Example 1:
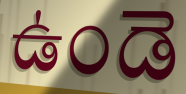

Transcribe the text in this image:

ఉండె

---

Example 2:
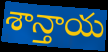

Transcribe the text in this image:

శాన్తాయ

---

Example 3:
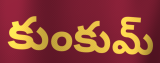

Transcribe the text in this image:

కుంకుమ్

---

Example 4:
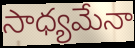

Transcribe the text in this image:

సాధ్యమేనా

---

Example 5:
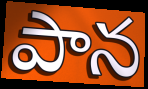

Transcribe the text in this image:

పాన